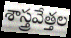
శాస్త్రవేత్తల